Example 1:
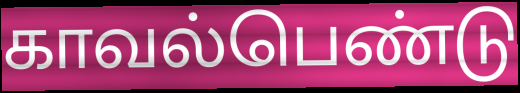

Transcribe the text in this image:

காவல்பெண்டு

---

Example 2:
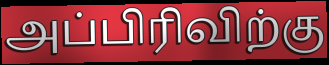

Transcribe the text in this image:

அப்பிரிவிற்கு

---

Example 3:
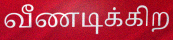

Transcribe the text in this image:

வீணடிக்கிற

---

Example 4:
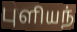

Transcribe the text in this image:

புளியந்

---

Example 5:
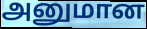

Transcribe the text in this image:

அனுமான